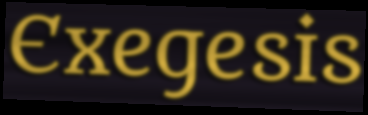
Exegesis